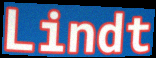
Lindt